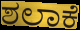
ಶಲಾಕೆ